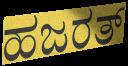
ಹಜರತ್